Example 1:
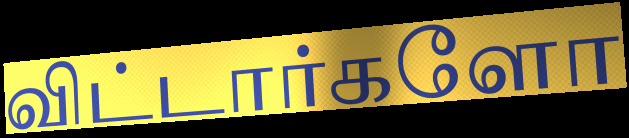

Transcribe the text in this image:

விட்டார்களோ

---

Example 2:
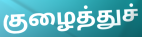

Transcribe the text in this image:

குழைத்துச்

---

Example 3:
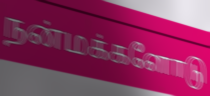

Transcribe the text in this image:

நன்மக்களோடு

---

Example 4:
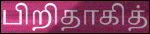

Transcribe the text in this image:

பிறிதாகித்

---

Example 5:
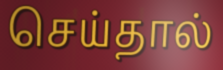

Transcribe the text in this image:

செய்தால்